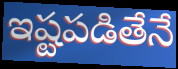
ఇష్టపడితేనే